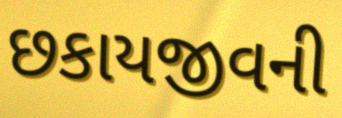
છકાયજીવની